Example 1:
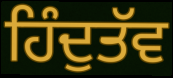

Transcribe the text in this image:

ਹਿੰਦੁਤੱਵ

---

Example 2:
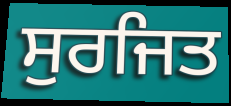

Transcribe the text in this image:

ਸੁਰਜਿਤ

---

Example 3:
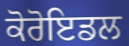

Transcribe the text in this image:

ਕੋਰੋਇਡਲ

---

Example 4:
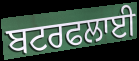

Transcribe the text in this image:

ਬਟਰਫਲਾਈ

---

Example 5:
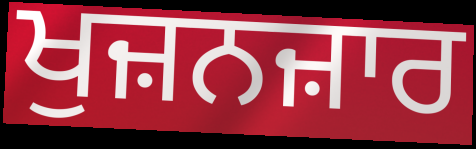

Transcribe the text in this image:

ਖੁਜ਼ਨਜ਼ਾਰ